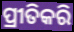
ପ୍ରୀତିକରି